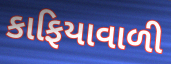
કાફિયાવાળી